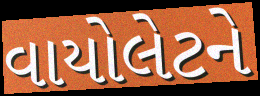
વાયોલેટને